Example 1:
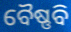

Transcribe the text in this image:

ବୈଷ୍ଣବି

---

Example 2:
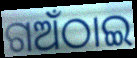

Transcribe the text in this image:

ଗଅଁଠାଇ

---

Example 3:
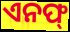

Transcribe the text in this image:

ଏନଫ୍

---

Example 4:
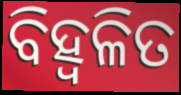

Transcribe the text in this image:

ବିହ୍ୱଳିତ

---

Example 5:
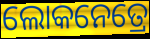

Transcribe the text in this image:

ଲୋକନେତ୍ରେ